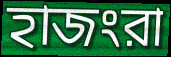
হাজংরা